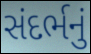
સંદર્ભનું